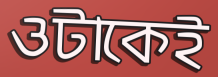
ওটাকেই